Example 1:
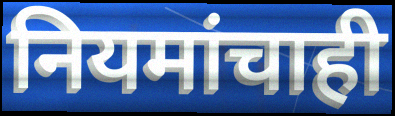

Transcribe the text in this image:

नियमांचाही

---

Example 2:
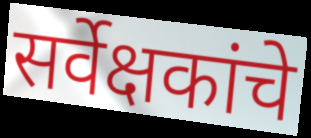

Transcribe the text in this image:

सर्वेक्षकांचे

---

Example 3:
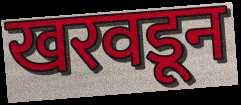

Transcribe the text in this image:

खरवडून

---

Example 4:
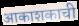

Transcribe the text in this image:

आकाशकाची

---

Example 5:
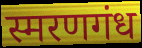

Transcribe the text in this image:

स्मरणगंध